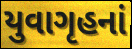
યુવાગૃહનાં